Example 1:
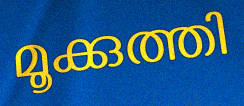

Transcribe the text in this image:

മൂക്കുത്തി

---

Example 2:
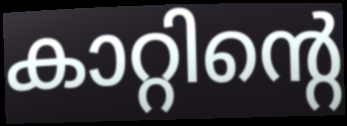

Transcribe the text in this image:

കാറ്റിന്റെ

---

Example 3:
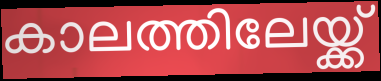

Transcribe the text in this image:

കാലത്തിലേയ്ക്ക്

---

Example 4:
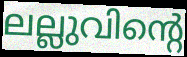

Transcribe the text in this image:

ലല്ലുവിന്റെ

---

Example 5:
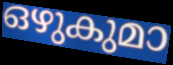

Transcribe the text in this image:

ഒഴുകുമാ